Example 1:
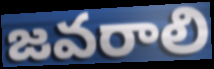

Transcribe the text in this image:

జవరాలి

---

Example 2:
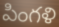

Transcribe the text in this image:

పింగళి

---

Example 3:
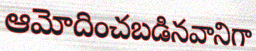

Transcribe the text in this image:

ఆమోదించబడినవానిగా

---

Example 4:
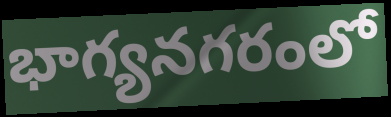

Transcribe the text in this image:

భాగ్యనగరంలో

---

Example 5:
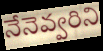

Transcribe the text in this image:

నేనెవ్వరిని